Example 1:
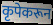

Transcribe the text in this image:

कृपेकरून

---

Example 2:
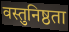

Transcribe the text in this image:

वस्तुनिष्ठता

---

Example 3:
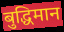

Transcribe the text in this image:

बुद्धिमान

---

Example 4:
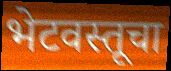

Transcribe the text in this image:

भेटवस्तूचा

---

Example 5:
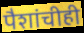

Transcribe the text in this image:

पैशांचीही